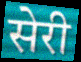
सेरी